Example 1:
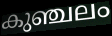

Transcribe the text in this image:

കുഞ്ചലം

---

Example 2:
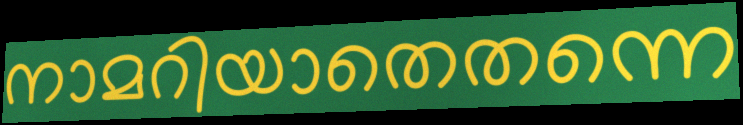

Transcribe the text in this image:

നാമറിയാതെതന്നെ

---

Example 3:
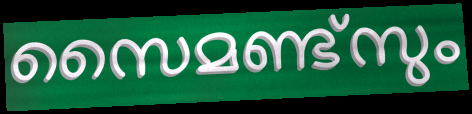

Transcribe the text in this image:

സൈമണ്ട്സും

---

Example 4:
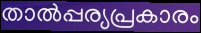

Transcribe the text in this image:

താൽപ്പര്യപ്രകാരം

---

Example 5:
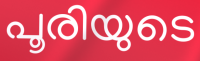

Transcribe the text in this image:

പൂരിയുടെ